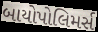
બાયોપોલિમર્સ